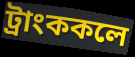
ট্রাংককলে